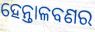
ହେନ୍ତାଳବଣର